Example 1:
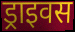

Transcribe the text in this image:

ड्राइवस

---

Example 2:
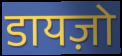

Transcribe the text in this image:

डायज़ो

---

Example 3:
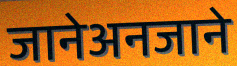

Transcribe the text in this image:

जानेअनजाने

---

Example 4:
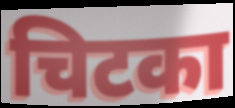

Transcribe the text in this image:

चिटका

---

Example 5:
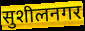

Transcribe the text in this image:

सुशीलनगर